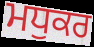
ਮਧੁਕਰ